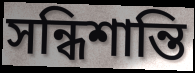
সন্ধিশান্তি